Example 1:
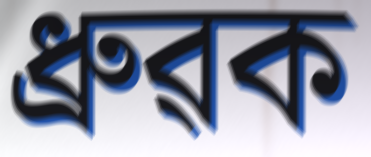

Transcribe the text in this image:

ধ্ৰুৱক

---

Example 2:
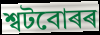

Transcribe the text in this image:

শ্বটবোৰৰ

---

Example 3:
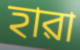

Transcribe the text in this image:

হাৱা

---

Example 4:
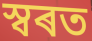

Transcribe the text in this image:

স্বৰত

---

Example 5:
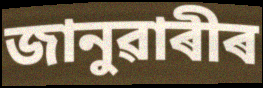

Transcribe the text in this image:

জানুৱাৰীৰ